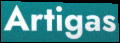
Artigas